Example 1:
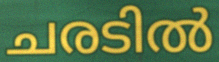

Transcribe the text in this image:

ചരടിൽ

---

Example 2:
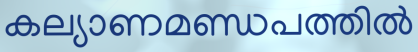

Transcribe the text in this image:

കല്യാണമണ്ഡപത്തിൽ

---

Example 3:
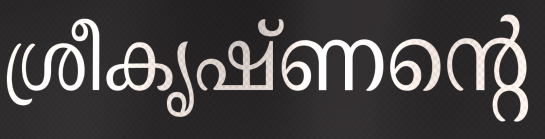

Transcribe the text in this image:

ശ്രീകൃഷ്ണന്റെ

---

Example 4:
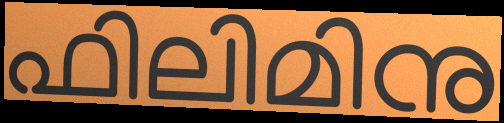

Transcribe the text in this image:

ഫിലിമിനു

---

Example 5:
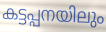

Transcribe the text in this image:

കട്ടപ്പനയിലും